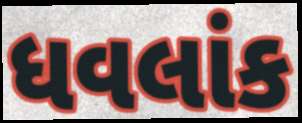
ધવલાંક